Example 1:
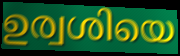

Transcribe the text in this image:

ഉര്വശിയെ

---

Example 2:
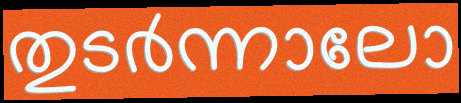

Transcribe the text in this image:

തുടർന്നാലോ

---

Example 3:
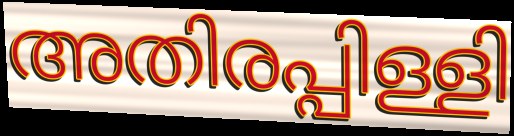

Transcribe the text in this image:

അതിരപ്പിള്ളി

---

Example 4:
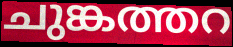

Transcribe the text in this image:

ചുങ്കത്തറ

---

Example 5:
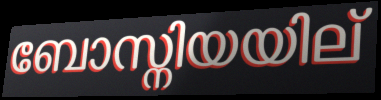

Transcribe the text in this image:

ബോസ്നിയയില്